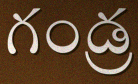
గండ్ర